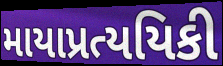
માયાપ્રત્યયિકી